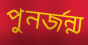
পুনর্জন্ম